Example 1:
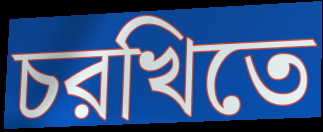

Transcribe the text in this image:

চরখিতে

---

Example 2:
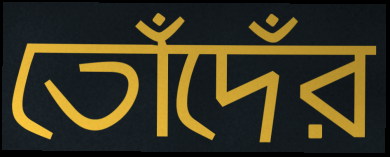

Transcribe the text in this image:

তোঁদেঁর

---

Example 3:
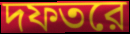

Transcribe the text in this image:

দফতরে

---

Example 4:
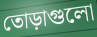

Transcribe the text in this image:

তোড়াগুলো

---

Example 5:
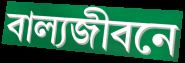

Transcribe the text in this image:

বাল্যজীবনে